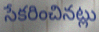
సేకరించినట్లు